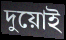
দুয়োই